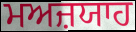
ਮਅਜ਼ਯਾਹ